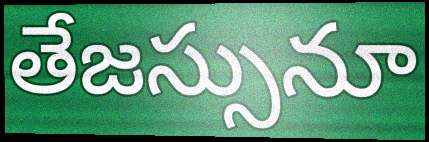
తేజస్సునూ